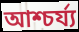
আশ্চর্য্য